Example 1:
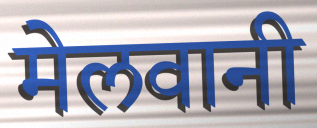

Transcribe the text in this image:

मेलवानी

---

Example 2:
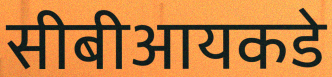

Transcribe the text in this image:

सीबीआयकडे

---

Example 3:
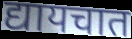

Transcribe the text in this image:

द्यायचात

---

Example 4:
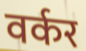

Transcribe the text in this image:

वर्कर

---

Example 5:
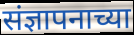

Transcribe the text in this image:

संज्ञापनाच्या